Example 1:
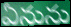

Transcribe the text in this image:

ఏనును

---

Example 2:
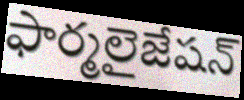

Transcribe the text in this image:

ఫార్మలైజేషన్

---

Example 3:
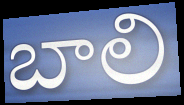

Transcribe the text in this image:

బాలి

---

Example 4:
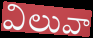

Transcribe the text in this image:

విలువా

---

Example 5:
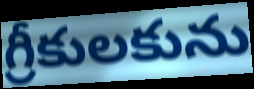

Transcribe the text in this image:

గ్రీకులకును